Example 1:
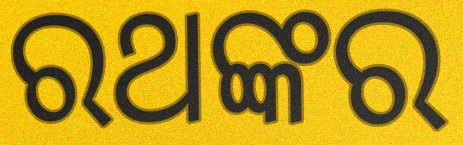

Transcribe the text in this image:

ରଥଙ୍କର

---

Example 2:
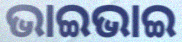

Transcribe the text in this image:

ଭାଇଭାଇ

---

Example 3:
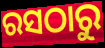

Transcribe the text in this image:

ରସଠାରୁ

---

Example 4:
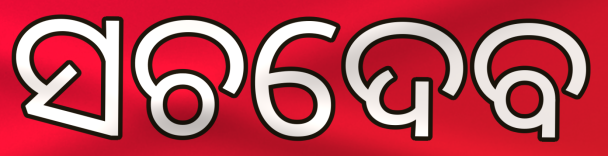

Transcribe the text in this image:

ସଚଦେବ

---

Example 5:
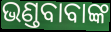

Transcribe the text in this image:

ଭଣ୍ଡବାବାଙ୍କ